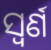
ସ୍ୱର୍ଣ